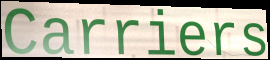
Carriers